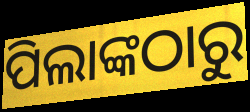
ପିଲାଙ୍କଠାରୁ